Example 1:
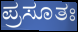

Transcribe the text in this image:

ಪ್ರಸೂತಃ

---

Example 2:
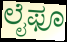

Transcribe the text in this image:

ಲೈಫೂ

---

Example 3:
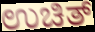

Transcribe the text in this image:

ಉಚಿತ್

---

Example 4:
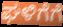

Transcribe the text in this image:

ಘಳಿಗೆಗೆ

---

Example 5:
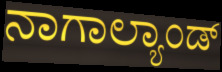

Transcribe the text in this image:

ನಾಗಾಲ್ಯಾಂಡ್